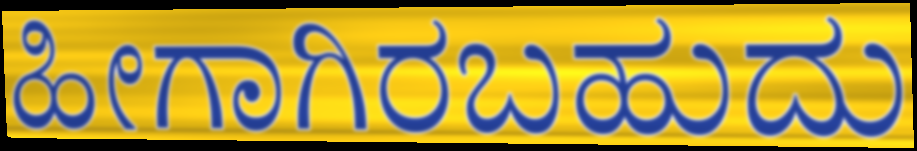
ಹೀಗಾಗಿರಬಹುದು